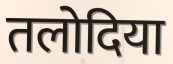
तलोदिया